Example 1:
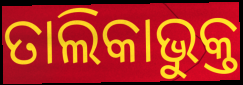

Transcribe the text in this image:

ତାଲିକାଭୁକ୍ତ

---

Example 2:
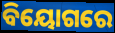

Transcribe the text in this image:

ବିୟୋଗରେ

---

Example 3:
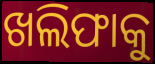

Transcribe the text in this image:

ଖଲିଫାକୁ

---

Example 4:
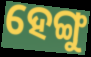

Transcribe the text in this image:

ହେଙ୍ଗୁ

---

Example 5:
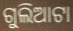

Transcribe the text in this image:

ଗୁଲିଆଟା